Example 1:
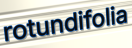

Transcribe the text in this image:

rotundifolia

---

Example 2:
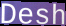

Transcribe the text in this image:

Desh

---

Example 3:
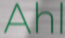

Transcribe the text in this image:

Ahl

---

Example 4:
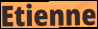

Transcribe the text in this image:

Etienne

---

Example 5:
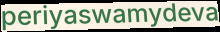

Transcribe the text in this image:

periyaswamydeva